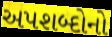
અપશબ્દોનો